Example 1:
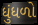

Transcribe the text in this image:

ધુંધળો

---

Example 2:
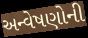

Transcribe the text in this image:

અન્વેષણોની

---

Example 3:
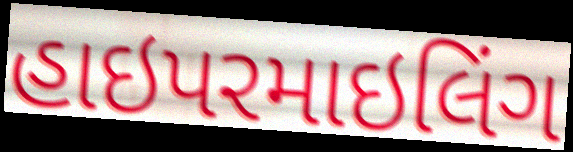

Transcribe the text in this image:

હાઇપરમાઇલિંગ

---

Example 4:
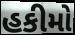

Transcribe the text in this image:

હકીમો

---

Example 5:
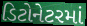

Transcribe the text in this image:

ડિટોનેટરમાં